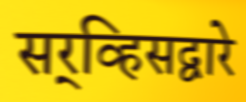
सर्व्हिसद्वारे